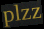
plzz